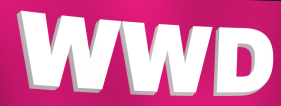
WWD